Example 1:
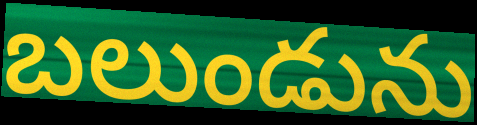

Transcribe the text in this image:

బలుండును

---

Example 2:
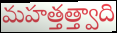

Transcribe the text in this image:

మహత్తత్త్వాది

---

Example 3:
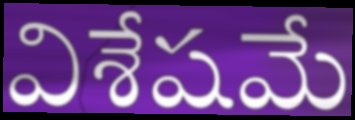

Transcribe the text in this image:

విశేషమే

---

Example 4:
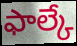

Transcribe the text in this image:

ఫాల్కే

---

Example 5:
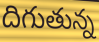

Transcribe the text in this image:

దిగుతున్న